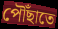
পৌঁছাতে